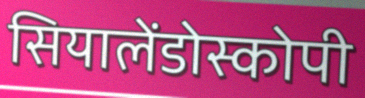
सियालेंडोस्कोपी